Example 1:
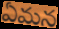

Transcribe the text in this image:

ఏమన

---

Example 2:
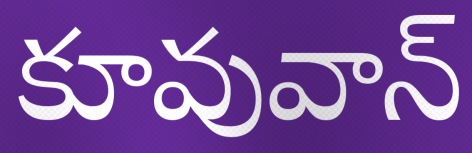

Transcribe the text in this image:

కూవువాన్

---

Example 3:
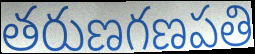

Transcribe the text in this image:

తరుణగణపతి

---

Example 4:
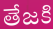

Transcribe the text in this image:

తేజకి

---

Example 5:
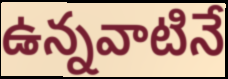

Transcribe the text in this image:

ఉన్నవాటినే